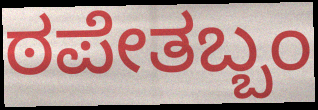
ಠಪೇತಬ್ಬಂ